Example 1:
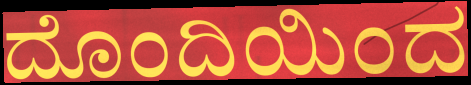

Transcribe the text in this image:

ದೊಂದಿಯಿಂದ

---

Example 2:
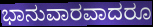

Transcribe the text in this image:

ಭಾನುವಾರವಾದರೂ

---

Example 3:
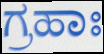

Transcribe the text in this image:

ಗ್ರಹಾಃ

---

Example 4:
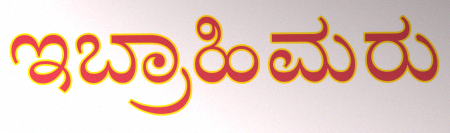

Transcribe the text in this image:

ಇಬ್ರಾಹಿಮರು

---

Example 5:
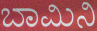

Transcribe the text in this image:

ಬಾಮಿನಿ